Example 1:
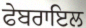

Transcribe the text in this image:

ਫੇਬਰਾਇਲ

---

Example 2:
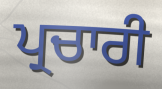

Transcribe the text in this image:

ਪ੍ਰਚਾਰੀ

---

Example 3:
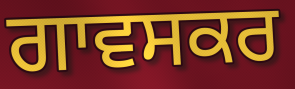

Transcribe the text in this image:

ਗਾਵਸਕਰ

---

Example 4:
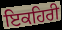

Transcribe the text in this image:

ਇਕਹਿਰੀ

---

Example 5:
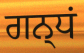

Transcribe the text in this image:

ਗਨ੍ਧਂ